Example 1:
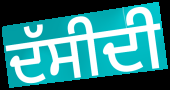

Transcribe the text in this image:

ਦੱਸੀਦੀ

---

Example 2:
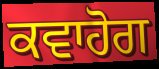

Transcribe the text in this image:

ਕਵਾਹੋਗ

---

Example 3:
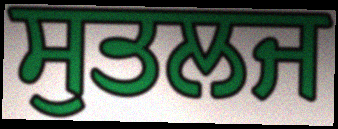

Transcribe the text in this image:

ਸੁਤਲਜ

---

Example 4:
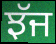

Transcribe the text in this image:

ਝੱਜ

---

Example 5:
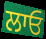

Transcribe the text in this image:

ਲਾਓ